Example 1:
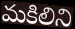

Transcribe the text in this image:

మకిలిని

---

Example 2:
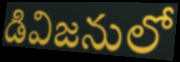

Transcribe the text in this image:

డివిజనులో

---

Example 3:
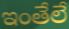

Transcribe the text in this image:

ఇంతేలే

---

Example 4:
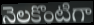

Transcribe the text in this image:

నెలకొంటిగా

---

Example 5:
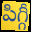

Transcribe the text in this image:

పిగ్గీ